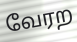
வேரற